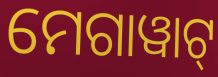
ମେଗାୱାଟ୍